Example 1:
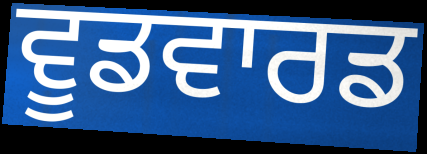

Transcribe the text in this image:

ਵੂਡਵਾਰਡ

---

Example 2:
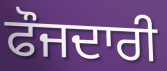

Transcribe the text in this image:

ਫੌਜਦਾਰੀ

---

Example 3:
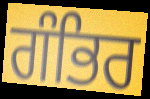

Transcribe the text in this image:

ਗੰਭਿਰ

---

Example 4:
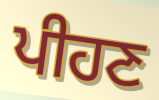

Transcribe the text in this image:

ਪੀਹਣ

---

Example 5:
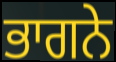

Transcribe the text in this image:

ਭਾਗਨੇ